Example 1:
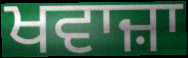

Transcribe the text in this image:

ਖਵਾਜ਼ਾ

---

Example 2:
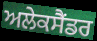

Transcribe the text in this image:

ਅਲੇਕਸੈਂਡਰ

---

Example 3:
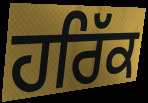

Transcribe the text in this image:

ਹਰਿੱਕ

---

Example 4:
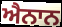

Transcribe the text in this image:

ਐਨਾਨ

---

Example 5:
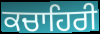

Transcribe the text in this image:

ਕਚਾਹਿਰੀ